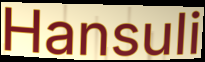
Hansuli